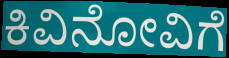
ಕಿವಿನೋವಿಗೆ